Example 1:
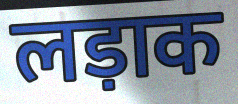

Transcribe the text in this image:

लड़ाक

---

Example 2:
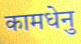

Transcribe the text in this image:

कामधेनु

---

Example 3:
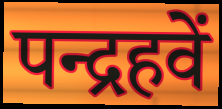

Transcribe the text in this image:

पन्द्रहवें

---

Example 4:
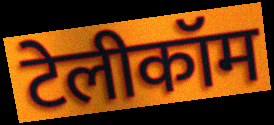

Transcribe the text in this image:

टेलीकॉम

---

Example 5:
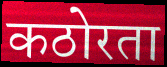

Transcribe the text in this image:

कठोरता